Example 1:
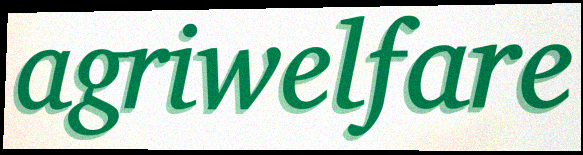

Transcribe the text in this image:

agriwelfare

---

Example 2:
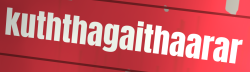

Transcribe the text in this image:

kuththagaithaarar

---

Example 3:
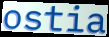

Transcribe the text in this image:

ostia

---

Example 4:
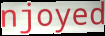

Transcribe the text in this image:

njoyed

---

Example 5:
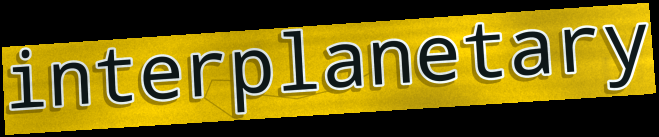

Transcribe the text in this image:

interplanetary